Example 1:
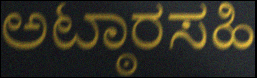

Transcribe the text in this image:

ಅಟ್ಠಾರಸಹಿ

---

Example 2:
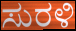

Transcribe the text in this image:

ಸುರಳಿ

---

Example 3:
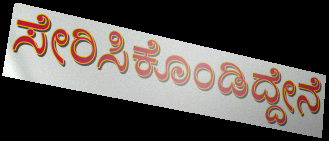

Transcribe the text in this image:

ಸೇರಿಸಿಕೊಂಡಿದ್ದೇನೆ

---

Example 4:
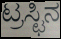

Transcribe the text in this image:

ಟ್ರಸ್ಟಿನ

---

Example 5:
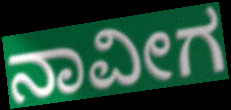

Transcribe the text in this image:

ನಾವೀಗ